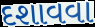
દશાવવા